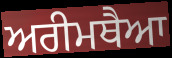
ਅਰੀਮਥੈਆ